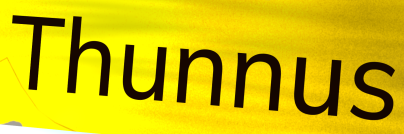
Thunnus